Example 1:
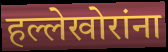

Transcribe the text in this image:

हल्लेखोरांना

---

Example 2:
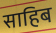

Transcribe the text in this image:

साहिब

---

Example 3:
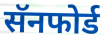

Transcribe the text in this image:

सॅनफोर्ड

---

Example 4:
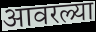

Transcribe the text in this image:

आवरल्या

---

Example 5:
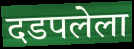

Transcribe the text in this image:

दडपलेला